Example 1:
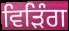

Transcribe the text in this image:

ਵਿੜਿੰਗ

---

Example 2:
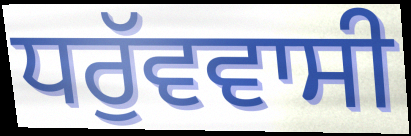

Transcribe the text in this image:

ਧਰੁੱਵਵਾਸੀ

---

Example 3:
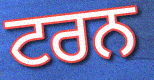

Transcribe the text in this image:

ਟਰਨ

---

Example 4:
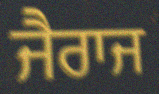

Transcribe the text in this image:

ਜੈਰਾਜ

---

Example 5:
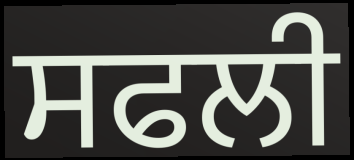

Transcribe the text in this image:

ਸਫਲੀ